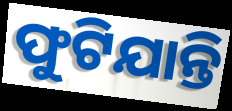
ଫୁଟିଯାନ୍ତି